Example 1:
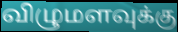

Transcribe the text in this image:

விழுமளவுக்கு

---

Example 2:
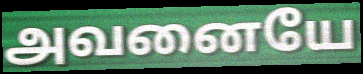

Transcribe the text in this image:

அவனையே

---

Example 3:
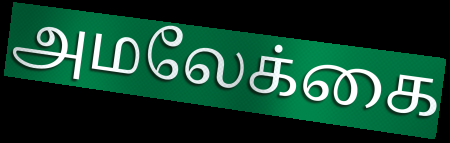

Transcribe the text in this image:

அமலேக்கை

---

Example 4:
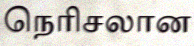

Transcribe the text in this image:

நெரிசலான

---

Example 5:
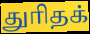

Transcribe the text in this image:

துரிதக்